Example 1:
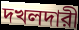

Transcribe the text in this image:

দখলদারী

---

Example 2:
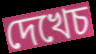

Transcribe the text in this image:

দেখেচ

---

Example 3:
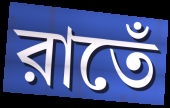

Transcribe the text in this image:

রাতেঁ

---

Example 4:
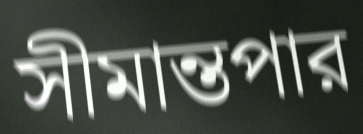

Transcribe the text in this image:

সীমান্তপার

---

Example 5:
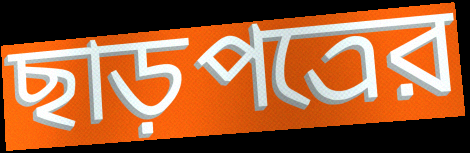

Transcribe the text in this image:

ছাড়পত্রের